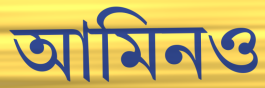
আমিনও